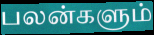
பலன்களும்